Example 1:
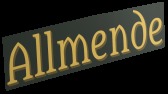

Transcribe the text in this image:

Allmende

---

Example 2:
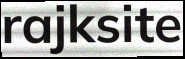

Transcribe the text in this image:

rajksite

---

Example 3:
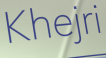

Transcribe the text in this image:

Khejri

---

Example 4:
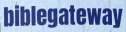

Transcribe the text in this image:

biblegateway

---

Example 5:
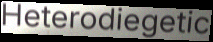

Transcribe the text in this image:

Heterodiegetic